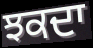
ਝਕਦਾ